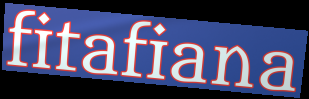
fitafiana